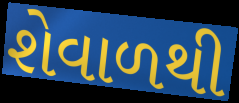
શેવાળથી